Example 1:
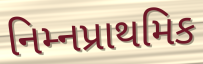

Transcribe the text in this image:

નિમ્નપ્રાથમિક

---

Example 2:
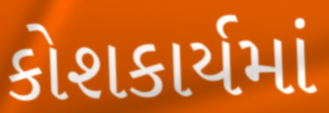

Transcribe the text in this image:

કોશકાર્યમાં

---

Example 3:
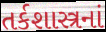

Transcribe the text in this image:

તર્કશાસ્ત્રનાં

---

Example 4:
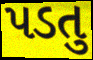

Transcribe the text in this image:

પડતુ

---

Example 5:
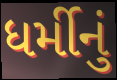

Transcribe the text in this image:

ધર્મીનું